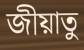
জীয়াতু